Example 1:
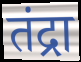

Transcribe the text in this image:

तंद्रा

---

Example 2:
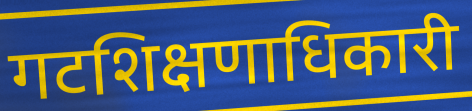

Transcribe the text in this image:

गटशिक्षणाधिकारी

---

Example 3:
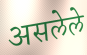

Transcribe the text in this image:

असलेले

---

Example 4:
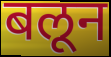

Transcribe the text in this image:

बलून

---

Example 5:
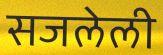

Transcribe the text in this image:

सजलेली